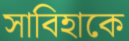
সাবিহাকে